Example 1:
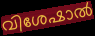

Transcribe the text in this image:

വിശേഷാൽ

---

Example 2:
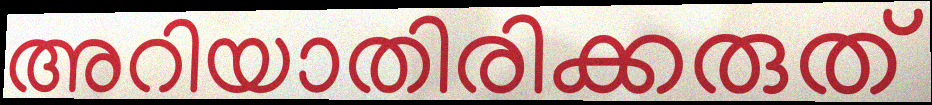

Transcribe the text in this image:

അറിയാതിരിക്കരുത്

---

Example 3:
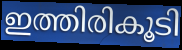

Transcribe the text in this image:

ഇത്തിരികൂടി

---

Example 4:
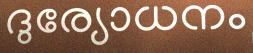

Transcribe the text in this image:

ദുര്യോധനം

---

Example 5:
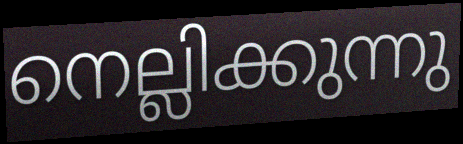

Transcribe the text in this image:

നെല്ലിക്കുന്നു